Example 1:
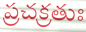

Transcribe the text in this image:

ప్రచక్రతుః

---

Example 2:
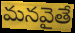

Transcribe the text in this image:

మనవైతే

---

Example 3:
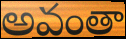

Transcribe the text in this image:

అవంతా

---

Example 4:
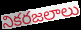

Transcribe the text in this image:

నికరజలాలు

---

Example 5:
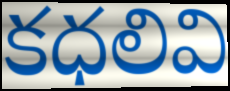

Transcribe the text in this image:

కధలివి